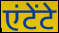
एंटेंटे